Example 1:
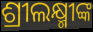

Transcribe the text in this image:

ଶ୍ରୀଲକ୍ଷ୍ମୀଙ୍କ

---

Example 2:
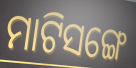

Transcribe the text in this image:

ମାଟିସଙ୍ଗେ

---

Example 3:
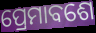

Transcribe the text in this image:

ପ୍ରେମାବଶେ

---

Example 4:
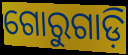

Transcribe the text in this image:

ଗୋରୁଗାଡ଼ି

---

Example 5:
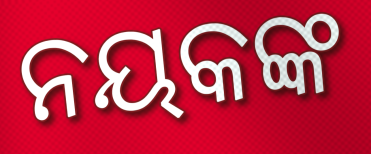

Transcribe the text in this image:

ନୟକଙ୍କ